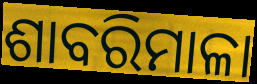
ଶାବରିମାଳା